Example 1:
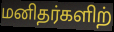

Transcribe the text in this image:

மனிதர்களிற்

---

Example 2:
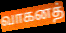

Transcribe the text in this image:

வாகனத்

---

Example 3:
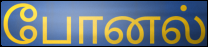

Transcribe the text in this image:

போனல்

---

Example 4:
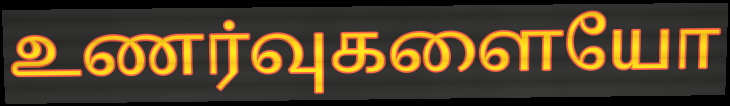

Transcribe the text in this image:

உணர்வுகளையோ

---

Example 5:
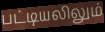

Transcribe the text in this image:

பட்டியலிலும்